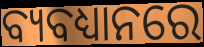
ବ୍ୟବଧ୍ୟାନରେ